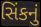
સિંકનું